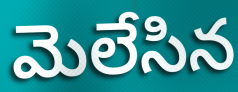
మెలేసిన